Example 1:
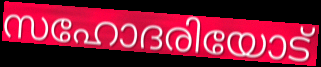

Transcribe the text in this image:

സഹോദരിയോട്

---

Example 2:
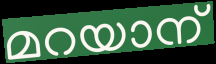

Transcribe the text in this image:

മറയാന്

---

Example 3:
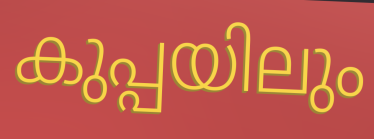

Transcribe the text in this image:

കുപ്പയിലും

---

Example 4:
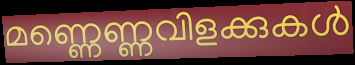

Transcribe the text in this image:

മണ്ണെണ്ണവിളക്കുകൾ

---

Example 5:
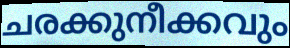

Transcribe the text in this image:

ചരക്കുനീക്കവും